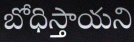
బోధిస్తాయని